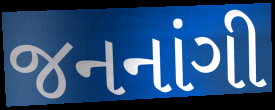
જનનાંગી